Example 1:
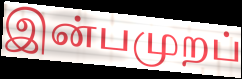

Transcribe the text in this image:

இன்பமுறப்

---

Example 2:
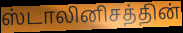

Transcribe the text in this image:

ஸ்டாலினிசத்தின்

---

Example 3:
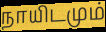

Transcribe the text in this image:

நாயிடமும்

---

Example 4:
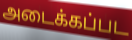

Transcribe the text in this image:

அடைக்கப்பட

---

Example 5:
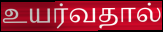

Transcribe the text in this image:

உயர்வதால்